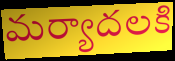
మర్యాదలకి